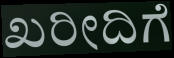
ಖರೀದಿಗೆ